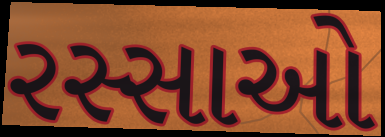
રસ્સાઓ